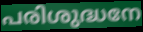
പരിശുദ്ധനേ